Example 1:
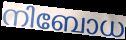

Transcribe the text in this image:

നിബോധ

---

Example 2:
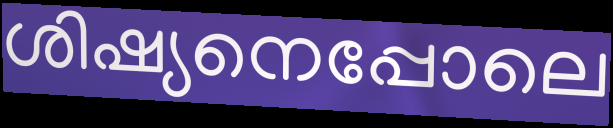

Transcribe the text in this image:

ശിഷ്യനെപ്പോലെ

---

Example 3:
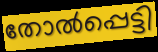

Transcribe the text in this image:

തോൽപ്പെട്ടി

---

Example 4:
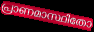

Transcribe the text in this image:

പ്രാണമാസ്ഥിതോ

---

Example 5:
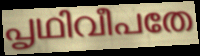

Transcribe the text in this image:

പൃഥിവീപതേ